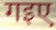
गइए